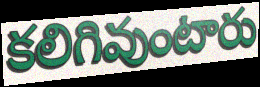
కలిగివుంటారు